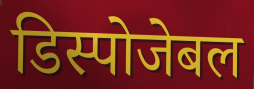
डिस्पोजेबल